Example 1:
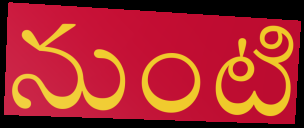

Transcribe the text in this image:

నుంటి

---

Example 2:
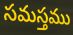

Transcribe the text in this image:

సమస్తము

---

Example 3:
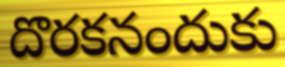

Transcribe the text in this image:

దొరకనందుకు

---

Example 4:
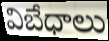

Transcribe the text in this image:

విబేధాలు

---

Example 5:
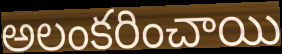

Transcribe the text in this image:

అలంకరించాయి